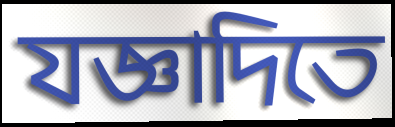
যজ্ঞাদিতে